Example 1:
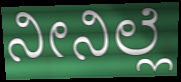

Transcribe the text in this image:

ನೀನಿಲ್ಲೆ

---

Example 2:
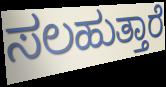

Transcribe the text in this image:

ಸಲಹುತ್ತಾರೆ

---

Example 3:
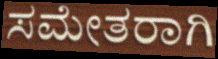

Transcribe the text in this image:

ಸಮೇತರಾಗಿ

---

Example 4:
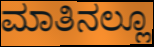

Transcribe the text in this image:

ಮಾತಿನಲ್ಲೂ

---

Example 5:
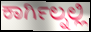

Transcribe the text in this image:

ಕಾರ್ಗಿಲ್ನಲ್ಲಿ